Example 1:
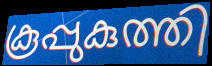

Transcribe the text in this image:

കൂപ്പുകുത്തി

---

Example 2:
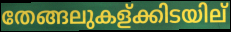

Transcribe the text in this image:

തേങ്ങലുകള്ക്കിടയില്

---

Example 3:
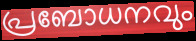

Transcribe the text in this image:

പ്രബോധനവും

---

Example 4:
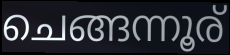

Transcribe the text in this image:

ചെങ്ങന്നൂര്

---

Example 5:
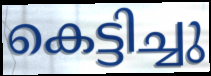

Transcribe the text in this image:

കെട്ടിച്ചു